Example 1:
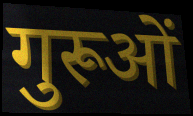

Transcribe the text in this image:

गुरूओं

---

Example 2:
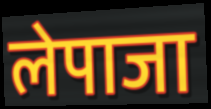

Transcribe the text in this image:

लेपाजा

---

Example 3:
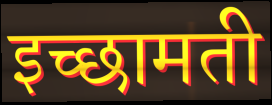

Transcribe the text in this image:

इच्छामती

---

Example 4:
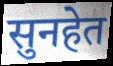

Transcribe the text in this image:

सुनहेत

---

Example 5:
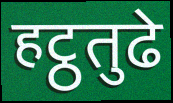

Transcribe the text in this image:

हट्ठतुढे